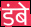
डंबे